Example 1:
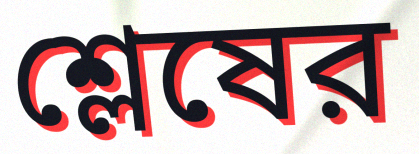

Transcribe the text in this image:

শ্লেষের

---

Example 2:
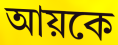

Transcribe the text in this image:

আয়কে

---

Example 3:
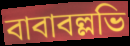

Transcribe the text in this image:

বাবাবল্লভি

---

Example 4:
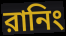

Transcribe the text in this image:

রানিং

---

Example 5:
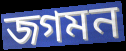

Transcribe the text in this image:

জগমন